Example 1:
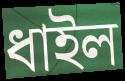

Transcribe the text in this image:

ধাইল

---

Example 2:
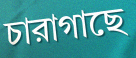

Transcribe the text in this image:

চারাগাছে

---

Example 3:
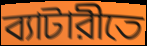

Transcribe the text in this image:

ব্যাটারীতে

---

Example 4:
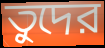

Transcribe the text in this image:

তুদের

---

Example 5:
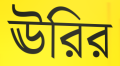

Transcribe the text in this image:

ঊরির